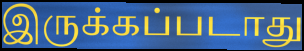
இருக்கப்படாது